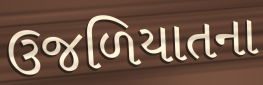
ઉજળિયાતના